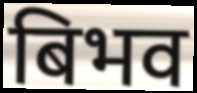
बिभव